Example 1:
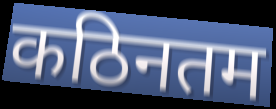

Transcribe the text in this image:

कठिनतम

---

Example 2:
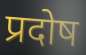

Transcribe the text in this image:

प्रदोष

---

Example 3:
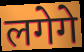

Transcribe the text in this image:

लगेगे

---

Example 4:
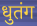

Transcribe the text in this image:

धुतंग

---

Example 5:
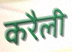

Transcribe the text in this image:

करैली